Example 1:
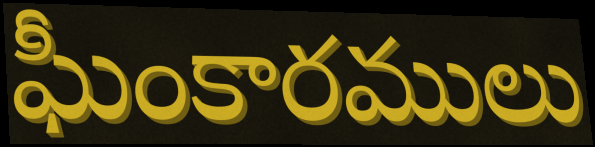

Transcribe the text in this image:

ఘీంకారములు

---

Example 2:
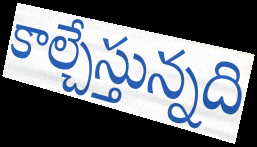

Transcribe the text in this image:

కాల్చేస్తున్నది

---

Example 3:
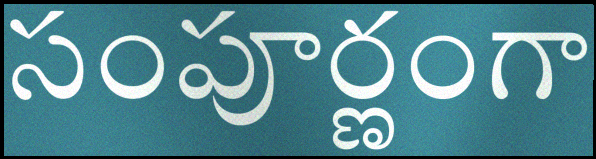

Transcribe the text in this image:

సంపూర్ణంగా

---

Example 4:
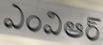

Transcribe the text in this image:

ఎంవిఆర్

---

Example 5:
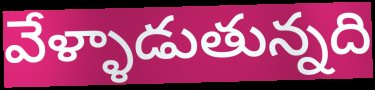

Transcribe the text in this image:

వేళ్ళాడుతున్నది